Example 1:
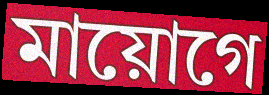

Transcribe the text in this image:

মায়োগে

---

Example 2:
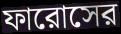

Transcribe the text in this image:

ফারোসের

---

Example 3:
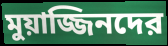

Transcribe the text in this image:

মুয়াজ্জিনদের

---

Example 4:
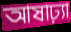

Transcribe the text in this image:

আষাঢ়্যা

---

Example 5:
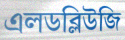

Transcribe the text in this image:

এলডব্লিউজি